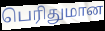
பெரிதுமான